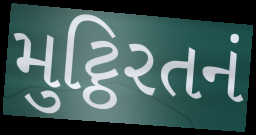
મુટ્ઠિરતનં